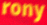
rony